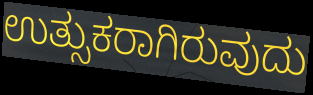
ಉತ್ಸುಕರಾಗಿರುವುದು